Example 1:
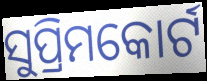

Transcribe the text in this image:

ସୁପ୍ରିମକୋର୍ଟ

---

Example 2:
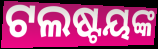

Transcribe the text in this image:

ଟଲଷ୍ଟୟଙ୍କ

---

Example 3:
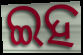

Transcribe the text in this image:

ଇହ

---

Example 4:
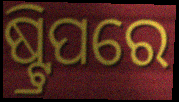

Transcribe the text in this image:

ଷ୍ଟ୍ରିପରେ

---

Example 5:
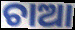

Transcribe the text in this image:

ଚାଆ